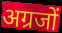
अग्रजों